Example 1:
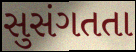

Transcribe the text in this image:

સુસંગતતા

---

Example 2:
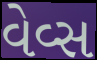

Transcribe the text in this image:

વેવ્સ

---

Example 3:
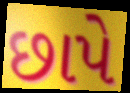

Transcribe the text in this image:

છાપે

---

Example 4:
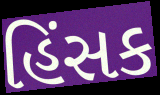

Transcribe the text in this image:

હિંસક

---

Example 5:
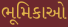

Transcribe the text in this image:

ભૂમિકાઓ